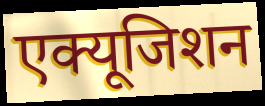
एक्यूजिशन